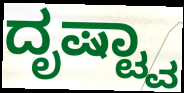
ದೃಷ್ಟ್ವಾ